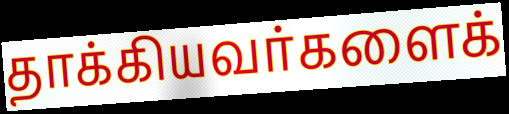
தாக்கியவர்களைக்